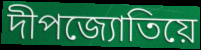
দীপজ্যোতিয়ে